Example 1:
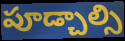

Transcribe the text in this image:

పూడ్చాల్సి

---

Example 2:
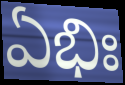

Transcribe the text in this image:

ఏభిః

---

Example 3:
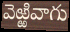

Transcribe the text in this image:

వెఱ్ఱివాగు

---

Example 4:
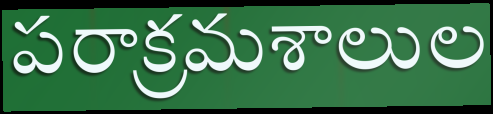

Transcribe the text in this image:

పరాక్రమశాలుల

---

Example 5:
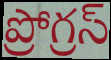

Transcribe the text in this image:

ప్రోగ్రస్